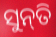
ସୁନ୍‌ତି